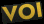
VOI